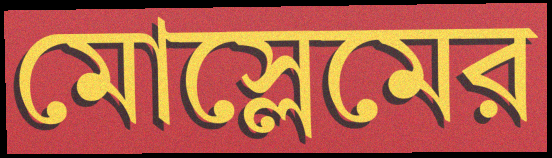
মোস্লেমের